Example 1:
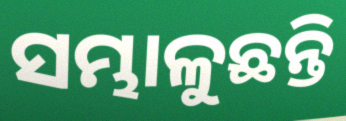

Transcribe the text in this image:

ସମ୍ଭାଳୁଛନ୍ତି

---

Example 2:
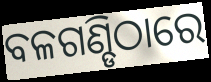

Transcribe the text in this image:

ବଳଗଣ୍ଡିଠାରେ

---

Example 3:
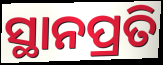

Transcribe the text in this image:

ସ୍ଥାନପ୍ରତି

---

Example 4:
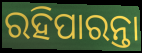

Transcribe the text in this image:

ରହିପାରନ୍ତା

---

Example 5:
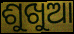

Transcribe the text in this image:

ଶୁଖୁଆ